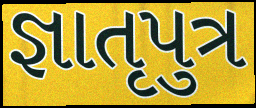
જ્ઞાતૃપુત્ર